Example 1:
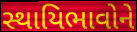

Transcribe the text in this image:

સ્થાયિભાવોને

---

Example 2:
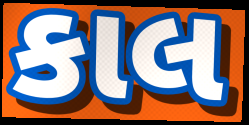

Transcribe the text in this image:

કાલ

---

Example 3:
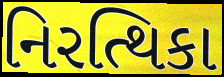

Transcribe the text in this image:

નિરત્થિકા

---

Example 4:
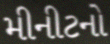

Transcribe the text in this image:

મીનીટનો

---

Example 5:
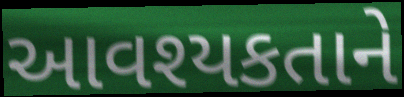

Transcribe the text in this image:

આવશ્યકતાને